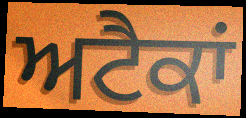
ਅਟੈਕਾਂ